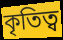
কৃতিত্ব